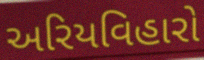
અરિયવિહારો